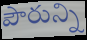
పౌరున్ని